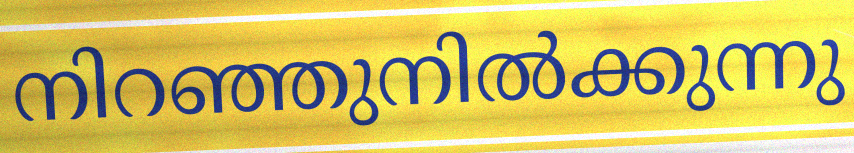
നിറഞ്ഞുനിൽക്കുന്നു